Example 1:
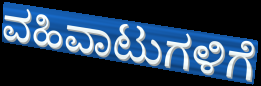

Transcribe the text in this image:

ವಹಿವಾಟುಗಳಿಗೆ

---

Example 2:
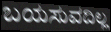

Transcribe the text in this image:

ಬಯಸುವದಿಲ್ಲ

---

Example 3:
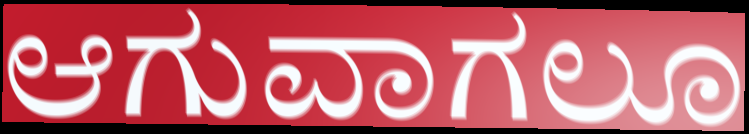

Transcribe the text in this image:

ಆಗುವಾಗಲೂ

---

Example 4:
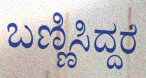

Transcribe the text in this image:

ಬಣ್ಣಿಸಿದ್ದರೆ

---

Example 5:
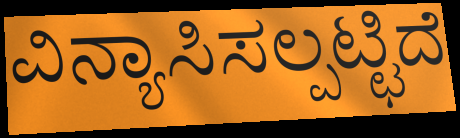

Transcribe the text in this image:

ವಿನ್ಯಾಸಿಸಲ್ಪಟ್ಟಿದೆ